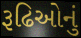
રૂઢિઓનું